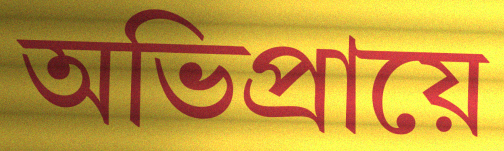
অভিপ্রায়ে